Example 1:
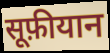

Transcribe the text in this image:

सूफ़ीयान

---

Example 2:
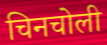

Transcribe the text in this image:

चिनचोली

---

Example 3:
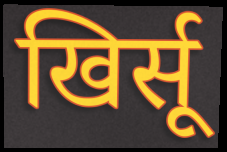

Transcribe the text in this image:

खिर्सू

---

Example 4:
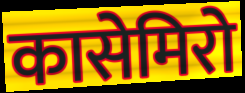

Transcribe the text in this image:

कासेमिरो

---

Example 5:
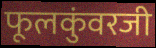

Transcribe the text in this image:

फूलकुंवरजी